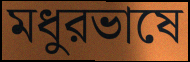
মধুরভাষে